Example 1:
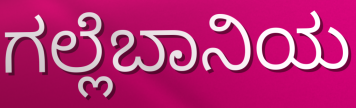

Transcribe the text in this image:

ಗಲ್ಲೆಬಾನಿಯ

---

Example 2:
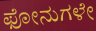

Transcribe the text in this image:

ಫೋನುಗಳೇ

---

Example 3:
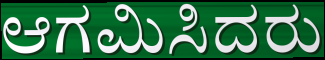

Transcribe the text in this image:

ಆಗಮಿಸಿದರು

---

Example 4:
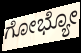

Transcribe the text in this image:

ಗೋಭ್ಯೋ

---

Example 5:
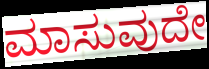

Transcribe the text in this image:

ಮಾಸುವುದೇ